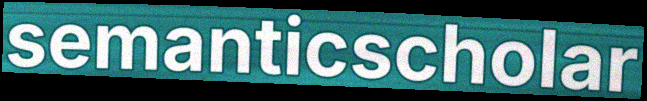
semanticscholar